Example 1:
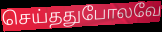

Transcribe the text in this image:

செய்ததுபோலவே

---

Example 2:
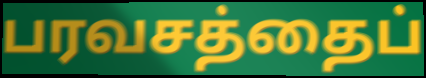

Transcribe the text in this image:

பரவசத்தைப்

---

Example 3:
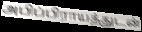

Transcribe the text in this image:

அபிப்பிராயத்துடன்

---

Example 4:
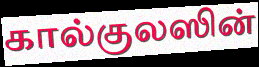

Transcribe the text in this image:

கால்குலஸின்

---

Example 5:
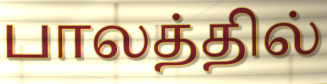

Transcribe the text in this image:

பாலத்தில்